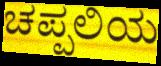
ಚಪ್ಪಲಿಯ